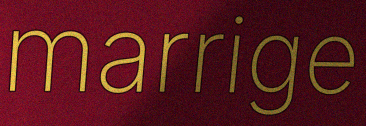
marrige